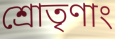
শ্রোতৃণাং